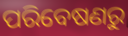
ପରିବେଷଣରୁ